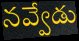
నవ్వేడు